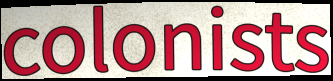
colonists